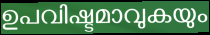
ഉപവിഷ്ടമാവുകയും